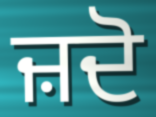
ਜ਼ਦੋ